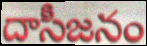
దాసీజనం